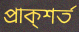
প্রাক্‌শর্ত